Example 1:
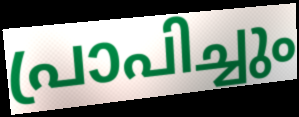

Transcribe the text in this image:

പ്രാപിച്ചും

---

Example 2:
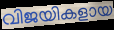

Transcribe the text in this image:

വിജയികളായ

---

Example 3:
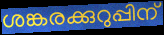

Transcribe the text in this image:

ശങ്കരക്കുറുപ്പിന്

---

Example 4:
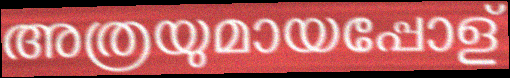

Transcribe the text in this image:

അത്രയുമായപ്പോള്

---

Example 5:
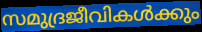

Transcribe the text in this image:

സമുദ്രജീവികൾക്കും